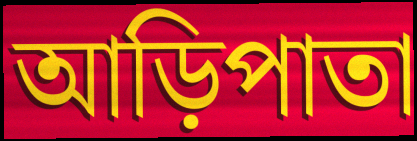
আড়িপাতা